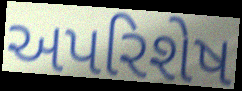
અપરિશેષ